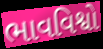
ભાવવિશ્વો